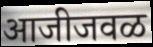
आजीजवळ